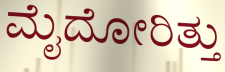
ಮೈದೋರಿತ್ತು